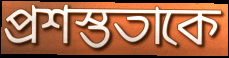
প্রশস্ততাকে